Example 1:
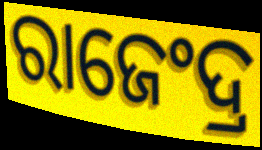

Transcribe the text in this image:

ରାଜେଂଦ୍ର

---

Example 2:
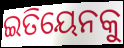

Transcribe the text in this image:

ଇତିୟେନକୁ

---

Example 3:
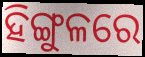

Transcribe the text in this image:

ହିଙ୍ଗୁଳରେ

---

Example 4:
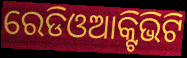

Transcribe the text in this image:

ରେଡିଓଆକ୍ଟିଭିଟି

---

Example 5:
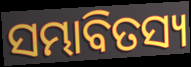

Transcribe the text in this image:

ସମ୍ଭାବିତସ୍ୟ